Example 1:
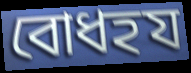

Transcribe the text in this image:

বোধহয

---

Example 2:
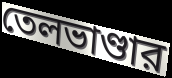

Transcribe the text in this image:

তেলভাণ্ডার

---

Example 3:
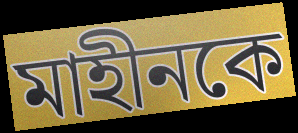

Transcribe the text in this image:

মাহীনকে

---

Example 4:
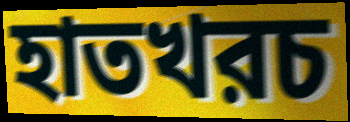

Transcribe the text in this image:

হাতখরচ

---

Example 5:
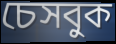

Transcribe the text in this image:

চেসবুক